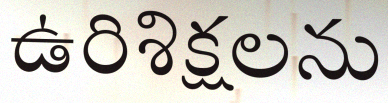
ఉరిశిక్షలను